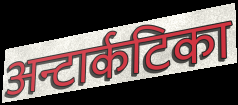
अन्टार्कटिका